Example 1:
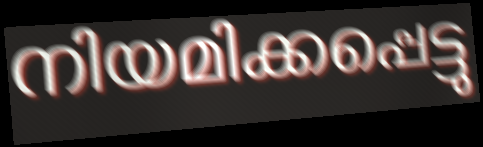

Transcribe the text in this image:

നിയമിക്കപ്പെട്ടു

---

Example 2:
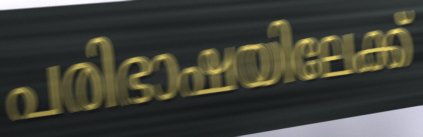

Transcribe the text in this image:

പരിഭാഷയിലേക്ക്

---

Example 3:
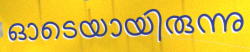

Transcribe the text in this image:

ഓടെയായിരുന്നു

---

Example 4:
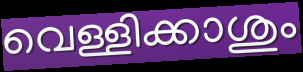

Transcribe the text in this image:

വെള്ളിക്കാശും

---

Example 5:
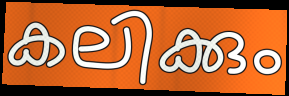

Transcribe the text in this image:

കലിക്കും